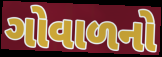
ગોવાળનો